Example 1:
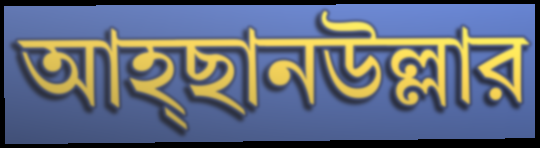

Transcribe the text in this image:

আহ্ছানউল্লার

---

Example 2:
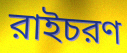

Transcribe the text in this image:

রাইচরণ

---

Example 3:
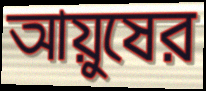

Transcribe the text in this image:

আয়ুষের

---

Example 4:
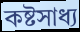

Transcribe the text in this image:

কষ্টসাধ্য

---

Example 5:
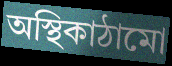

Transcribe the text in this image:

অস্থিকাঠামো